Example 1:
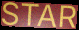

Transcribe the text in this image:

STAR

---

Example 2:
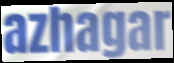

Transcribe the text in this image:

azhagar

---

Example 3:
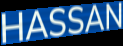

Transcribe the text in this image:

HASSAN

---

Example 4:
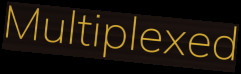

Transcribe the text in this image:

Multiplexed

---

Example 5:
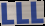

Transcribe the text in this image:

LLL